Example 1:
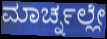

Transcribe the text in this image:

ಮಾರ್ಚ್ನಲ್ಲೇ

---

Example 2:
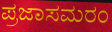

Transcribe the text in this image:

ಪ್ರಜಾಸಮರಂ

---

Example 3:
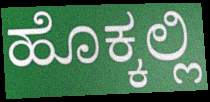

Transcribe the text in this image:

ಹೊಕ್ಕಲ್ಲಿ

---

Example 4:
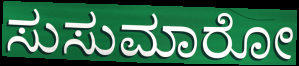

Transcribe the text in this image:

ಸುಸುಮಾರೋ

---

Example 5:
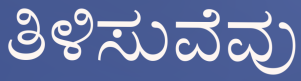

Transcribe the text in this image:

ತಿಳಿಸುವೆವು